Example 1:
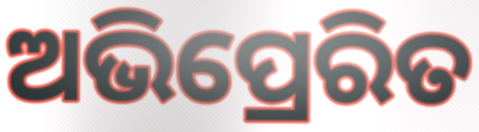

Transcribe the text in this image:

ଅଭିପ୍ରେରିତ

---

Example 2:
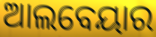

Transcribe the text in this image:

ଆଲବେୟାର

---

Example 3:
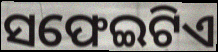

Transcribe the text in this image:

ସଫେଇଟିଏ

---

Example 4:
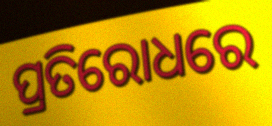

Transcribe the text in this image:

ପ୍ରତିରୋଧରେ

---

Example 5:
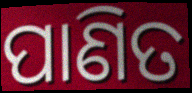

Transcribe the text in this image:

ପାଣିତ